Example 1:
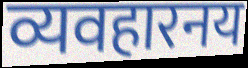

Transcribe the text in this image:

व्यवहारनय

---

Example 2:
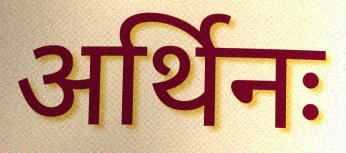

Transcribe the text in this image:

अर्थिनः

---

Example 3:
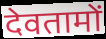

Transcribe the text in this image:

देवतामों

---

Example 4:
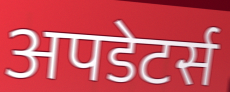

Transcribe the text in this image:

अपडेटर्स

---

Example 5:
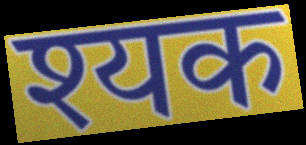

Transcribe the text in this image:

श्यक